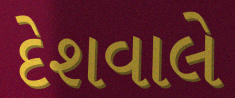
દેશવાલે